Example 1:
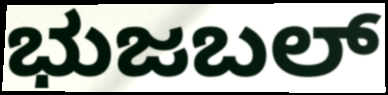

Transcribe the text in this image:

ಭುಜಬಲ್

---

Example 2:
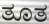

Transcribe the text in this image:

ತೂತ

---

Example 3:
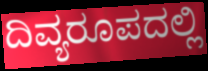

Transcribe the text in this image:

ದಿವ್ಯರೂಪದಲ್ಲಿ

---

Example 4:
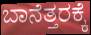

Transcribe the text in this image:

ಬಾನೆತ್ತರಕ್ಕೆ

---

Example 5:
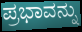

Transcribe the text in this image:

ಪ್ರಭಾವನ್ನು